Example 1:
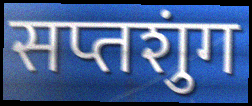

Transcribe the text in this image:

सप्तश्रुंग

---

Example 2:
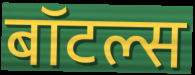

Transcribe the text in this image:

बॉटल्स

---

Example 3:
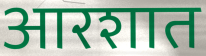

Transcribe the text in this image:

आरशात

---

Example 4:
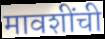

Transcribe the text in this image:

मावशींची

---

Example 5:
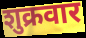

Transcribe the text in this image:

शुक्रवार